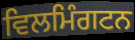
ਵਿਲਮਿੰਗਟਨ